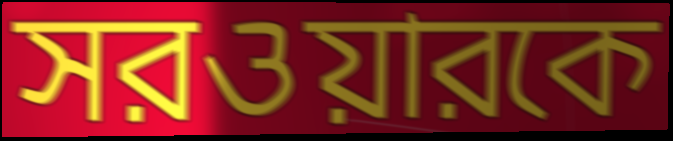
সরওয়ারকে